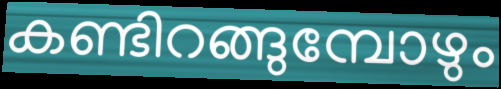
കണ്ടിറങ്ങുമ്പോഴും